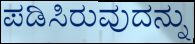
ಪಡಿಸಿರುವುದನ್ನು